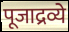
पूजाद्रव्ये